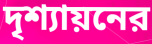
দৃশ্যায়নের